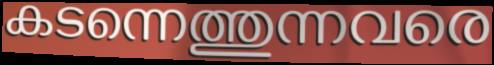
കടന്നെത്തുന്നവരെ